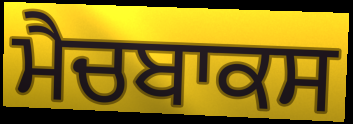
ਮੈਚਬਾਕਸ